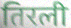
तिरली